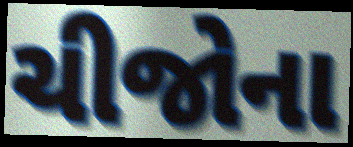
ચીજોના